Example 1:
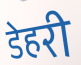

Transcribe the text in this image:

डेहरी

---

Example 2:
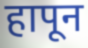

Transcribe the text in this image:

हापून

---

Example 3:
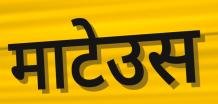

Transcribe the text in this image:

माटेउस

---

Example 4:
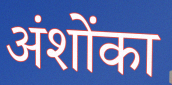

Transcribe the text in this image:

अंशोंका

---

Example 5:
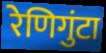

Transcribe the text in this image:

रेणिगुंटा